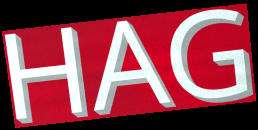
HAG